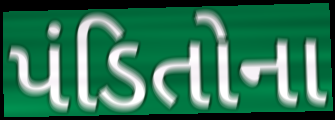
પંડિતોના